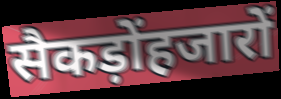
सैकड़ोंहजारों